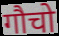
गौचो